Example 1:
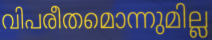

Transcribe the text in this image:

വിപരീതമൊന്നുമില്ല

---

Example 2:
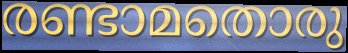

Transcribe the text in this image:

രണ്ടാമതൊരു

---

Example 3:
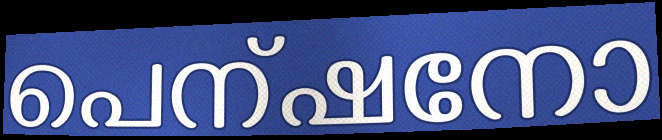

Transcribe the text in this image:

പെന്ഷനോ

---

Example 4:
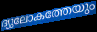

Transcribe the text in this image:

ദ്യുലോകത്തേയും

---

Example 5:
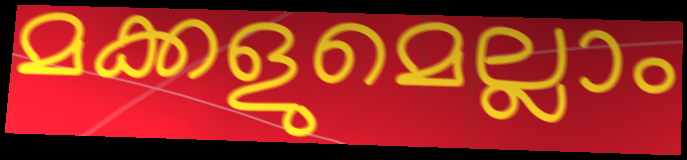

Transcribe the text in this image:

മക്കളുമെല്ലാം